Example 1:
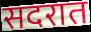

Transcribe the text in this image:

सदरात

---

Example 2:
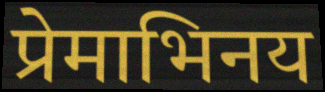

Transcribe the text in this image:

प्रेमाभिनय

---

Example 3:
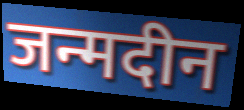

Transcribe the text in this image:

जन्मदीन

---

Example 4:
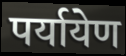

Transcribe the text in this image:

पर्यायेण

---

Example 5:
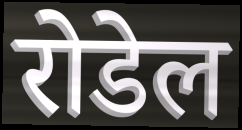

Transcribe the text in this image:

रोडेल